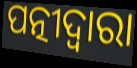
ପତ୍ନୀଦ୍ୱାରା